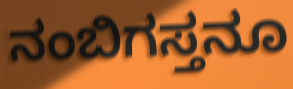
ನಂಬಿಗಸ್ತನೂ